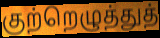
குற்றெழுத்துத்